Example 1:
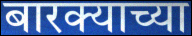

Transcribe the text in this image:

बारक्याच्या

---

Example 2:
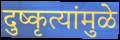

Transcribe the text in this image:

दुष्कृत्यांमुळे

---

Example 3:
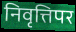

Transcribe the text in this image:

निवृत्तिपर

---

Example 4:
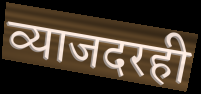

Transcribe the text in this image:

व्याजदरही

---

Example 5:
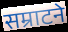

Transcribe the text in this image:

सम्राटने